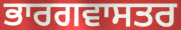
ਭਾਰਗਵਾਸਤਰ